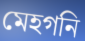
মেহগনি